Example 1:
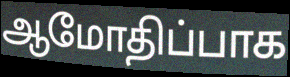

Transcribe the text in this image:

ஆமோதிப்பாக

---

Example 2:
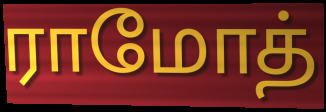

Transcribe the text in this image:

ராமோத்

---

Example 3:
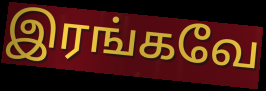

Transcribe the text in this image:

இரங்கவே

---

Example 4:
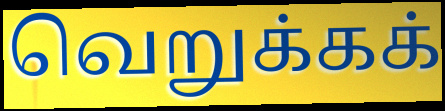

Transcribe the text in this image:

வெறுக்கக்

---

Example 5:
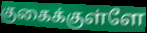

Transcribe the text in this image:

குகைக்குள்ளே